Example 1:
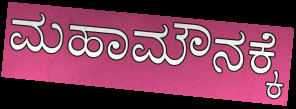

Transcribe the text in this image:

ಮಹಾಮೌನಕ್ಕೆ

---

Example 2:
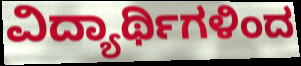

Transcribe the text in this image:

ವಿದ್ಯಾರ್ಥಿಗಳಿಂದ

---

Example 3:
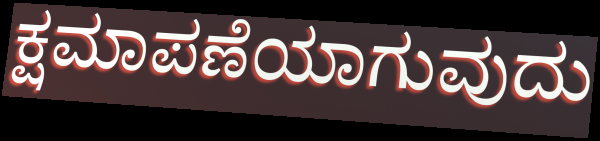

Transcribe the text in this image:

ಕ್ಷಮಾಪಣೆಯಾಗುವುದು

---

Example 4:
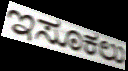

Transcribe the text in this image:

ಇಸೂಕಲು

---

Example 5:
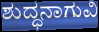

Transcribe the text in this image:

ಶುದ್ಧನಾಗುವಿ